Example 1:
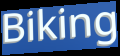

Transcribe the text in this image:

Biking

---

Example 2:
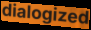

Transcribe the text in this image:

dialogized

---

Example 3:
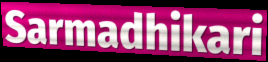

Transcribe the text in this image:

Sarmadhikari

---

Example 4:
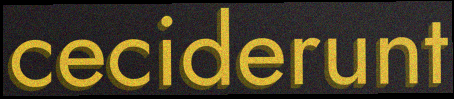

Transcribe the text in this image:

ceciderunt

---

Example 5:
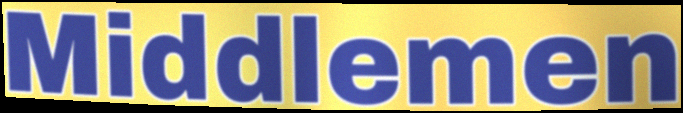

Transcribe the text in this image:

Middlemen